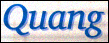
Quang